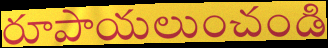
రూపాయలుంచండి